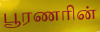
பூரணரின்